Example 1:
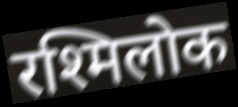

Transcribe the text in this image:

रश्मिलोक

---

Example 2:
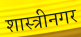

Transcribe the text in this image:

शास्त्रीनगर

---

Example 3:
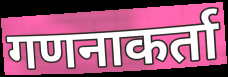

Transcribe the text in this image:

गणनाकर्ता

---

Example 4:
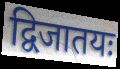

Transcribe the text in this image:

द्विजातयः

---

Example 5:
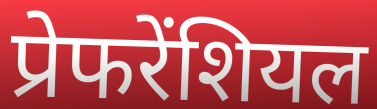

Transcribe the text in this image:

प्रेफरेंशियल